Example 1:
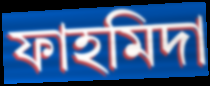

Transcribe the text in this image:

ফাহমিদা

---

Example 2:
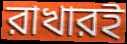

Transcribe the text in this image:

রাখারই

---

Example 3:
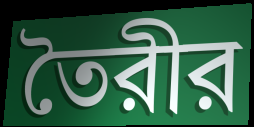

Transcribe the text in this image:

তৈরীর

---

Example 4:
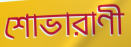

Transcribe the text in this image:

শোভারাণী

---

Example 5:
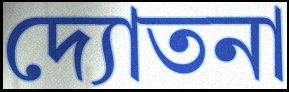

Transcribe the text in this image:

দ্যোতনা